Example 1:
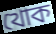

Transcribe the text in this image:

থোক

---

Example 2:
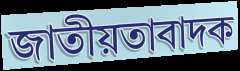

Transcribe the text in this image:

জাতীয়তাবাদক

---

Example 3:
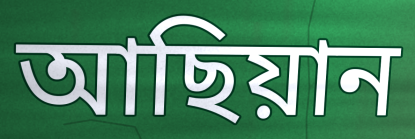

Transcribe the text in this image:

আছিয়ান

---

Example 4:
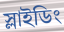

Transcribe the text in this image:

স্লাইডিং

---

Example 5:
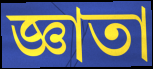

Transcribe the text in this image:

জ্ঞাতা